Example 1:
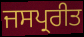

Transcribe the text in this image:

ਜਸਪ੍ਰਰੀਤ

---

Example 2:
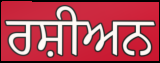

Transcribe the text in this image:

ਰਸ਼ੀਅਨ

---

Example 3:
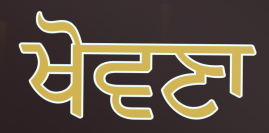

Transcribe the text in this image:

ਖੋਵਣਾ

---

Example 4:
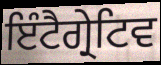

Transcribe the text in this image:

ਇੰਟੈਗ੍ਰੇਟਿਵ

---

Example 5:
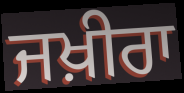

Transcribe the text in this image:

ਜਖ਼ੀਰਾ